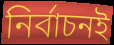
নির্বাচনই